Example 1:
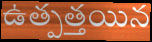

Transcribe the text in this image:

ఉత్పత్తయిన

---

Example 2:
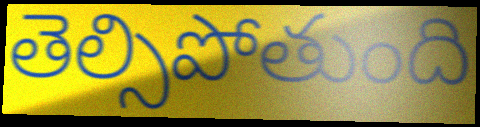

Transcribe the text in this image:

తెల్సిపోతుంది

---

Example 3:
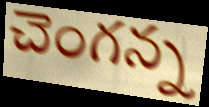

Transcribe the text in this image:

చెంగన్న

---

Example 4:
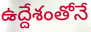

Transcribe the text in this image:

ఉద్దేశంతోనే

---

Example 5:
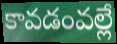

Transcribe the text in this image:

కావడంవల్లే